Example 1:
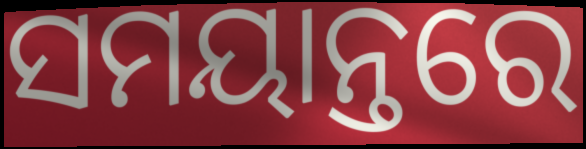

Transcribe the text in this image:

ସମୟାନ୍ତରେ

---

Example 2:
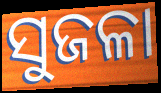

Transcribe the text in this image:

ସୁଜଳା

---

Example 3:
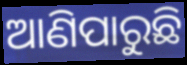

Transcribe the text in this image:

ଆଣିପାରୁଛି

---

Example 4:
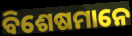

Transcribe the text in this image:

ବିଶେଷମାନେ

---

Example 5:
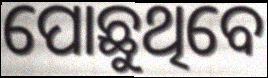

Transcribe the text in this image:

ପୋଛୁଥିବେ